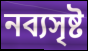
নব্যসৃষ্ট